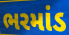
ભરમાંડ